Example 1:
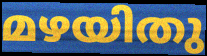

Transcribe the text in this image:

മഴയിതു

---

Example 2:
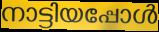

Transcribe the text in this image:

നാട്ടിയപ്പോൾ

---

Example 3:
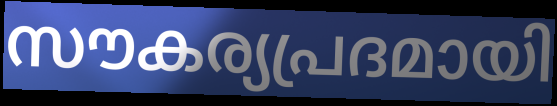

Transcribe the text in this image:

സൗകര്യപ്രദമായി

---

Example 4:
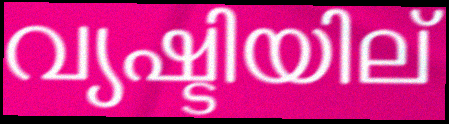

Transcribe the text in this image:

വ്യഷ്ടിയില്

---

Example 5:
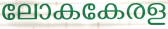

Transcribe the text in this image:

ലോകകേരള